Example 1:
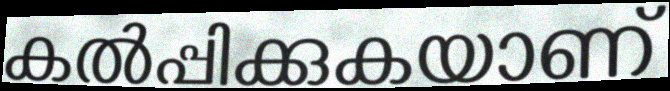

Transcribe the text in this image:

കൽപ്പിക്കുകയാണ്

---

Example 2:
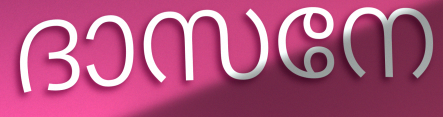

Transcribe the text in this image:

ദാസനേ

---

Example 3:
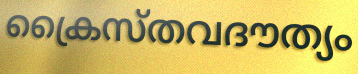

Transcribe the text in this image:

ക്രൈസ്തവദൗത്യം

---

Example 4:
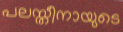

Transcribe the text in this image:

പലസ്തീനായുടെ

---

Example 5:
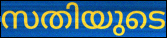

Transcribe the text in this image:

സതിയുടെ